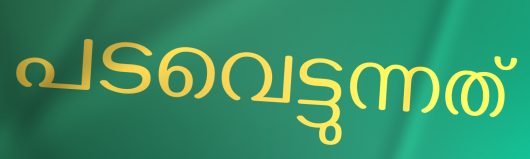
പടവെട്ടുന്നത്